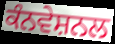
ਕੰਨਵੇਸ਼ਨਲ